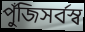
পুঁজিসর্বস্ব